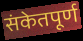
संकेतपूर्ण